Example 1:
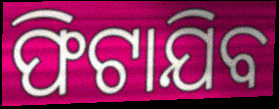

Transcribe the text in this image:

ଫିଟାଯିବ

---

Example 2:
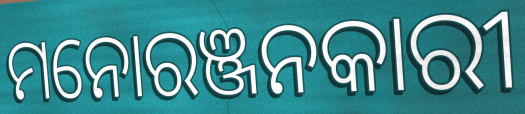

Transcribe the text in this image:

ମନୋରଞ୍ଜନକାରୀ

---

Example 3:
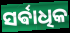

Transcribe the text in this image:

ସର୍ଵାଧିକ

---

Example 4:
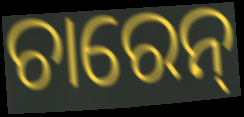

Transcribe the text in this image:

ଚାରେନ୍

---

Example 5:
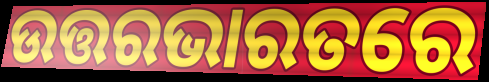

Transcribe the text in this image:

ଉତ୍ତରଭାରତରେ